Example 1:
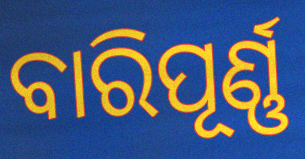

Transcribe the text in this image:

ବାରିପୂର୍ଣ୍ଣ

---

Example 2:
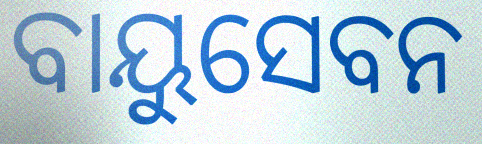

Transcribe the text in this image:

ବାୟୁସେବନ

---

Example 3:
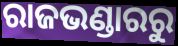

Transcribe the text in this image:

ରାଜଭଣ୍ଡାରରୁ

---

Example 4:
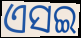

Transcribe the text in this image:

ଏସଇ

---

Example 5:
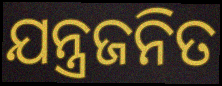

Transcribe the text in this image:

ଯନ୍ତ୍ରଜନିତ